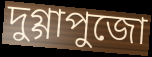
দুগ্গাপুজো